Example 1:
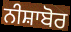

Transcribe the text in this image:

ਨੀਸ਼ਾਬੋਰ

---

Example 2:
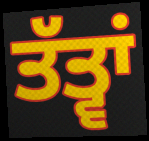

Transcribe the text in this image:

ਤੱਤ੍ਵਾਂ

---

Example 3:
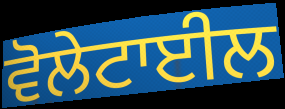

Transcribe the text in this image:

ਵੋਲੇਟਾਈਲ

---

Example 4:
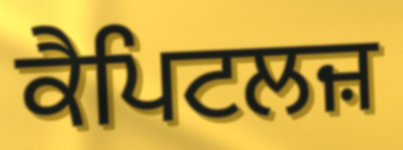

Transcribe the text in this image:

ਕੈਪਿਟਲਜ਼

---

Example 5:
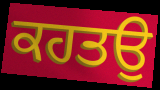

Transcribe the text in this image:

ਕਹਤਉ